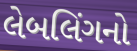
લેબલિંગનો